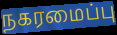
நகரமைப்பு